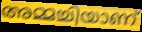
അമ്മച്ചിയാണ്